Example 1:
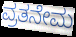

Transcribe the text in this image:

ವ್ರತನೇಮ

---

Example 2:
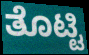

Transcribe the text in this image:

ತೊಟ್ಟಿ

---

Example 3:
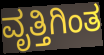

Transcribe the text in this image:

ವೃತ್ತಿಗಿಂತ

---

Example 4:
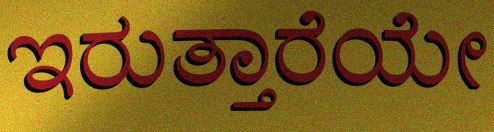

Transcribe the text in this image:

ಇರುತ್ತಾರೆಯೇ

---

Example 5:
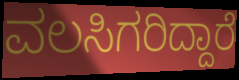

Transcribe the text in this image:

ವಲಸಿಗರಿದ್ದಾರೆ